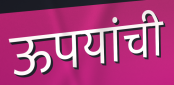
ऊपयांची